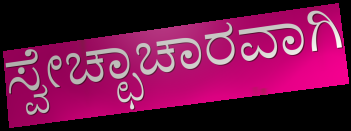
ಸ್ವೇಚ್ಛಾಚಾರವಾಗಿ